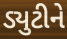
ડ્યુટીને